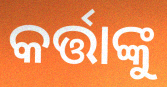
କର୍ତ୍ତାଙ୍କୁ